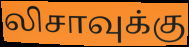
லிசாவுக்கு